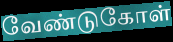
வேண்டுகோள்